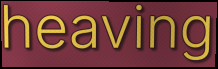
heaving